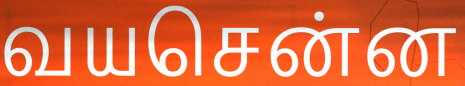
வயசென்ன